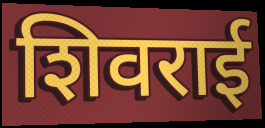
शिवराई